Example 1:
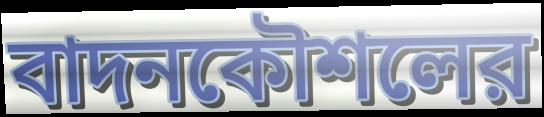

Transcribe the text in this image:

বাদনকৌশলের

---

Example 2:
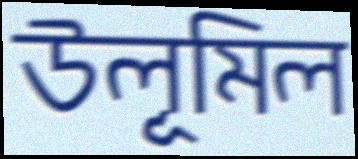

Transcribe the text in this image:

উলূমিল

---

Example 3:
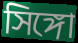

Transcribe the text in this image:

সিঙ্গো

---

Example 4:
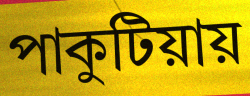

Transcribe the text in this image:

পাকুটিয়ায়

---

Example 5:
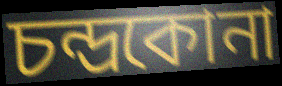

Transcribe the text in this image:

চন্দ্রকোনা